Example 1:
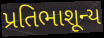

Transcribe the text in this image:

પ્રતિભાશૂન્ય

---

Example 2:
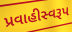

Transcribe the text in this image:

પ્રવાહીસ્વરૂપ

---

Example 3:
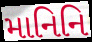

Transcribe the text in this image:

માનિનિ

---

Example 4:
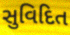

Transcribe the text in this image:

સુવિદિત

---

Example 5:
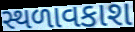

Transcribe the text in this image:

સ્થળાવકાશ